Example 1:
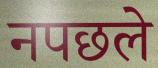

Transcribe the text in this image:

नपछले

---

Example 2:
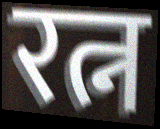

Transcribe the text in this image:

रत्न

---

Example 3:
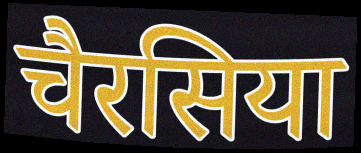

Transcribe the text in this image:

चैरसिया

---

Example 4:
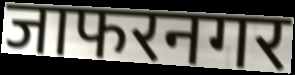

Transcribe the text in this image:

जाफरनगर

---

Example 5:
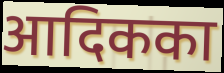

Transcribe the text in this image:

आदिकका